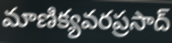
మాణిక్యవరప్రసాద్